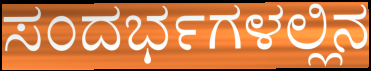
ಸಂದರ್ಭಗಳಲ್ಲಿನ